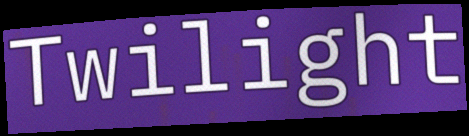
Twilight